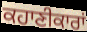
ਕਹਾਣੀਕਾਰਾਂ